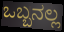
ಒಬ್ಬನಲ್ಲ